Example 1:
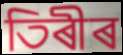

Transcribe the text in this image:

তিৰীৰ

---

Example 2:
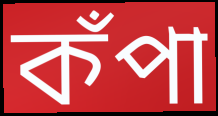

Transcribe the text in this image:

কঁপা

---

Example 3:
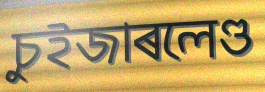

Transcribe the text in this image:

চুইজাৰলেণ্ড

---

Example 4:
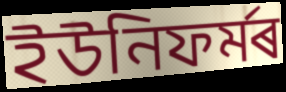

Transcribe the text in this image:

ইউনিফৰ্মৰ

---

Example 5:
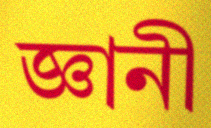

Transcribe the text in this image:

জ্ঞানী